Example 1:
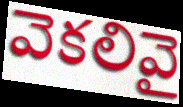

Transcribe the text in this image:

వెకలివై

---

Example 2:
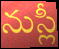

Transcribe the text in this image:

నుస్లీ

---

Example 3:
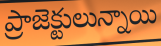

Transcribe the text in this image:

ప్రాజెక్టులున్నాయి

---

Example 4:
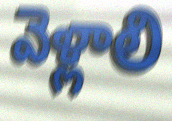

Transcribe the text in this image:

వెళ్లాలి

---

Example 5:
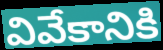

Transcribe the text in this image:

వివేకానికి